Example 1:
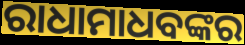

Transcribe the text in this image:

ରାଧାମାଧବଙ୍କର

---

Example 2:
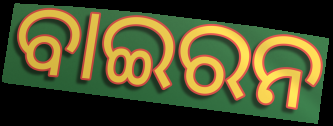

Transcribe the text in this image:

ବାଇରନ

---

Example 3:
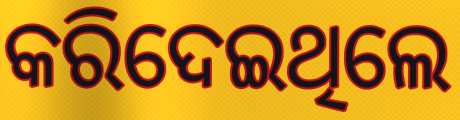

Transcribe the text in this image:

କରିଦେଇଥିଲେ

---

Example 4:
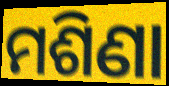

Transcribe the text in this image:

ମଶିଣା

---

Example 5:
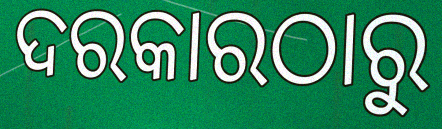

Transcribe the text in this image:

ଦରକାରଠାରୁ